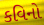
કવિનો